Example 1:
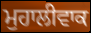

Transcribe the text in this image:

ਮੁਹਾਲੀਵਾਕ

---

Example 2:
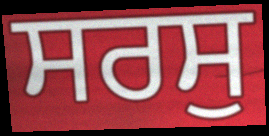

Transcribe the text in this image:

ਸਰਸੁ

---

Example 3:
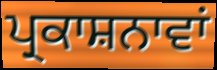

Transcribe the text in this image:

ਪ੍ਰਕਾਸ਼ਨਾਵਾਂ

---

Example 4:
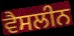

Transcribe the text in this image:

ਵੈਸਲੀਨ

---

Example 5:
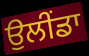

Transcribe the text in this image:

ਉਲੀਂਡਾ